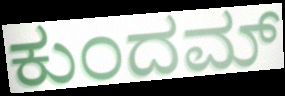
ಕುಂದಮ್